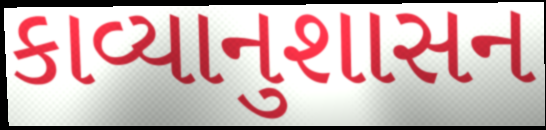
કાવ્યાનુશાસન